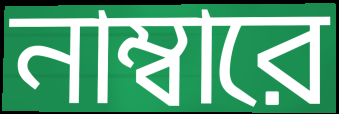
নাম্বারে